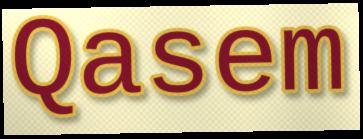
Qasem